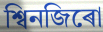
শ্বিনজিৰো